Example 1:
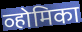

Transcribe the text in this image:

व्होमिका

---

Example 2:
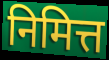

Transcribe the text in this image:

निमित्त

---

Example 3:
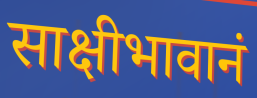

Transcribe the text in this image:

साक्षीभावानं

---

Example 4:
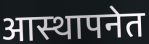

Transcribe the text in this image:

आस्थापनेत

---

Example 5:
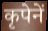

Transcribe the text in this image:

कृपेनें